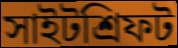
সাইটশ্রিফট